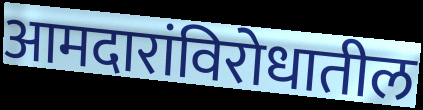
आमदारांविरोधातील